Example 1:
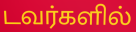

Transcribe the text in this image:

டவர்களில்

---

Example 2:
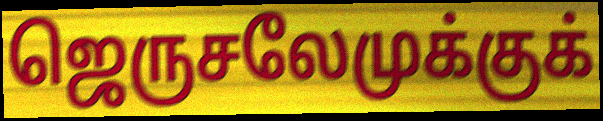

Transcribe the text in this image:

ஜெருசலேமுக்குக்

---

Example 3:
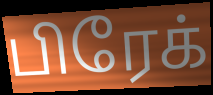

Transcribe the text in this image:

பிரேக்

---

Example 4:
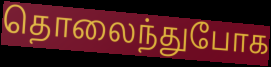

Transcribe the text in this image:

தொலைந்துபோக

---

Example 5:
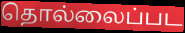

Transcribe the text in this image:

தொல்லைப்பட